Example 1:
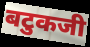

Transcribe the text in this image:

बटुकजी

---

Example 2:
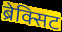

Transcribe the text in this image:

ब्रेक्सिट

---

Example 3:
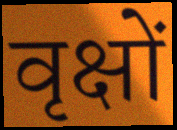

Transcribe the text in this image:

वृक्षों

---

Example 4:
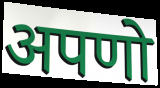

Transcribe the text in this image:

अपणो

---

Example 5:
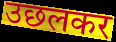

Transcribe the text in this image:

उछलकर